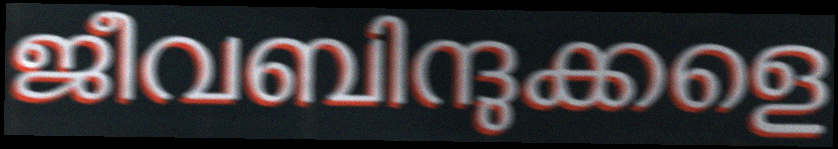
ജീവബിന്ദുക്കളെ